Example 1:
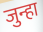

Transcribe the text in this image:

जुन्हा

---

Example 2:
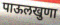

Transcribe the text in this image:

पाऊलखुणा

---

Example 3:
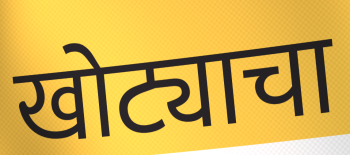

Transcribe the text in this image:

खोट्याचा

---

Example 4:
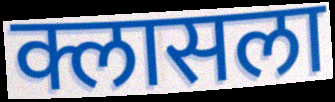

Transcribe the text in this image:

क्लासला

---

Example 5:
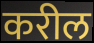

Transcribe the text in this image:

करील